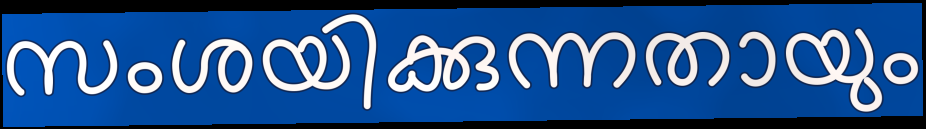
സംശയിക്കുന്നതായും